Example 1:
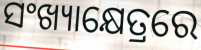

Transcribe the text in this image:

ସଂଖ୍ୟାକ୍ଷେତ୍ରରେ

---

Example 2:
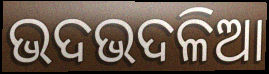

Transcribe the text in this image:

ଭଦଭଦଳିଆ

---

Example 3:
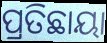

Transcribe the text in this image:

ପ୍ରତିଛାୟା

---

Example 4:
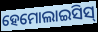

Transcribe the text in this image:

ହେମୋଲାଇସିସ୍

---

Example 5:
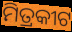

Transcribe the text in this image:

ମିତ୍ରକୀଟ